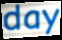
day